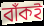
বাঁকই